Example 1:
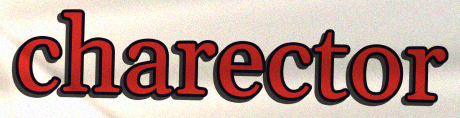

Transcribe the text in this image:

charector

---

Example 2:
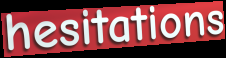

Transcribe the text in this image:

hesitations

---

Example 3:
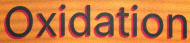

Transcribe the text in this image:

Oxidation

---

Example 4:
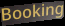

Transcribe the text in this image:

Booking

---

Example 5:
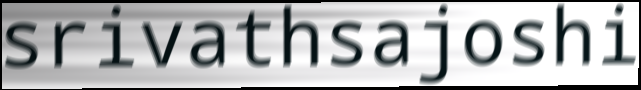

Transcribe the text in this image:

srivathsajoshi